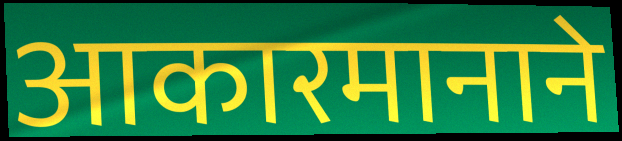
आकारमानाने